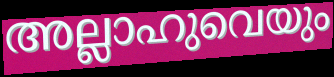
അല്ലാഹുവെയും